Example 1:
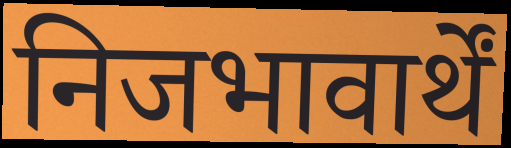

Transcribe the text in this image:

निजभावार्थें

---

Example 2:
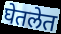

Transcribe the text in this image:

घेतलेत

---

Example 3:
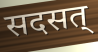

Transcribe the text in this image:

सदसत्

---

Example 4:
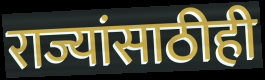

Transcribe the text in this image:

राज्यांसाठीही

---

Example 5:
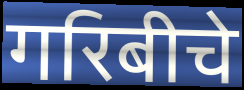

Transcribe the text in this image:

गरिबीचे